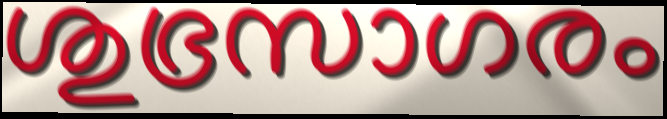
ശുഭ്രസാഗരം